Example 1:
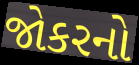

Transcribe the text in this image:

જોકરનો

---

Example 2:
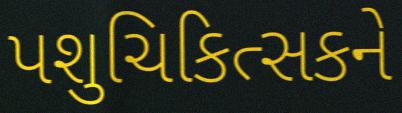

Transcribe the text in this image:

પશુચિકિત્સકને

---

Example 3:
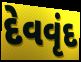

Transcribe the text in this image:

દેવવૃંદ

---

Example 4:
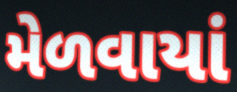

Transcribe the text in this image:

મેળવાયાં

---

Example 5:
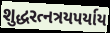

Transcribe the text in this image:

શુદ્ધરત્નત્રયપર્યાય